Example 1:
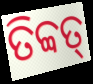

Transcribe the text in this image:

ତିବ୍ବତ୍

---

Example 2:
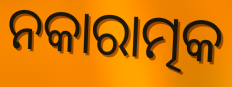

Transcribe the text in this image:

ନକାରାତ୍ମକ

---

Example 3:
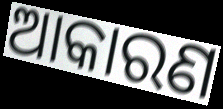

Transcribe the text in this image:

ଆକାରଣ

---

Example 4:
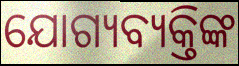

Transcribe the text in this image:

ଯୋଗ୍ୟବ୍ୟକ୍ତିଙ୍କ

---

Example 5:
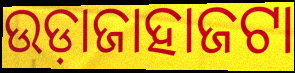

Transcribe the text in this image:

ଉଡ଼ାଜାହାଜଟା